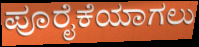
ಪೂರೈಕೆಯಾಗಲು